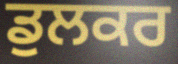
ਡੁਲਕਰ